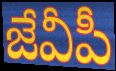
జేవీపీ